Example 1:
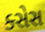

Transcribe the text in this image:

ક્સેસ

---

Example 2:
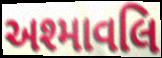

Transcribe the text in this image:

અશ્માવલિ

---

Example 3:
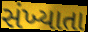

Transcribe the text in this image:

સંખ્યાતા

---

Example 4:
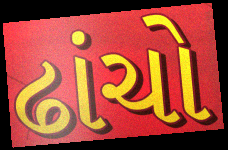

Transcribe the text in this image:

ઢાંચો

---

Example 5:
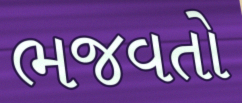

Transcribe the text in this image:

ભજવતો